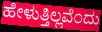
ಹೇಳುತ್ತಿಲ್ಲವೆಂದು